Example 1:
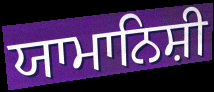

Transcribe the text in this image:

ਯਾਮਾਨਿਸ਼ੀ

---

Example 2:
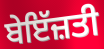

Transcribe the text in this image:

ਬੇਇੱਜ਼ਤੀ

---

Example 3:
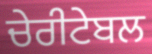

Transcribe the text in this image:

ਚੇਰੀਟੇਬਲ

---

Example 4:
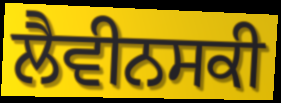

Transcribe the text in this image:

ਲੈਵੀਨਸਕੀ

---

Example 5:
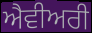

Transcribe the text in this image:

ਐਵੀਅਰੀ